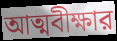
আত্মবীক্ষার